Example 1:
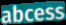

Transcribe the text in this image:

abcess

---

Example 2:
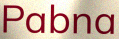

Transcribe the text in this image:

Pabna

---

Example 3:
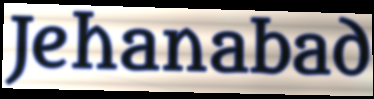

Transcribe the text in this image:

Jehanabad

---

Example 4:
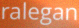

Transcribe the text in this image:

ralegan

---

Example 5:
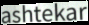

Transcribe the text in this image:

ashtekar